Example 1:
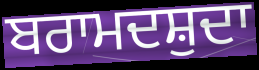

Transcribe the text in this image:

ਬਰਾਮਦਸ਼ੁਦਾ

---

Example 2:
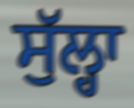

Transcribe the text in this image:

ਸੁੱਲ੍ਹਾ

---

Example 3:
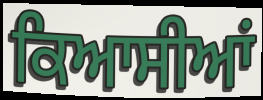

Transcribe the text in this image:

ਕਿਆਸੀਆਂ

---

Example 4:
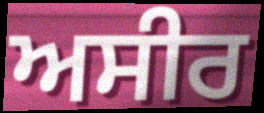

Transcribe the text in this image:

ਅਸੀਰ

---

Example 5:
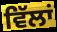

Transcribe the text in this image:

ਵਿੱਲਾਂ